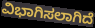
ವಿಭಾಗಿಸಲಾಗಿದೆ